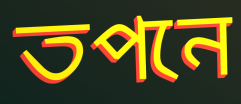
তপনে